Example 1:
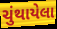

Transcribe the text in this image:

ચુંથાયેલા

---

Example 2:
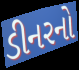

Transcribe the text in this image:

ડીનરનો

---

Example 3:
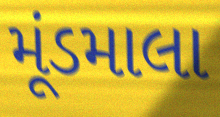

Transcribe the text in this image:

મૂંડમાલા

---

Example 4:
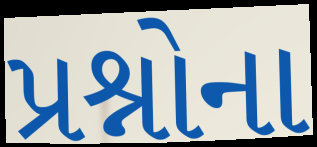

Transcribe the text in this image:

પ્રશ્નોના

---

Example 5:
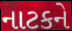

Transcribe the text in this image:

નાટકને